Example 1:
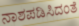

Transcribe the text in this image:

ನಾಶಪಡಿಸಿದಂತೆ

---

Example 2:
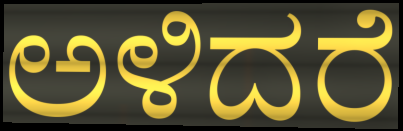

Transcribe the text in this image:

ಅಳಿದರೆ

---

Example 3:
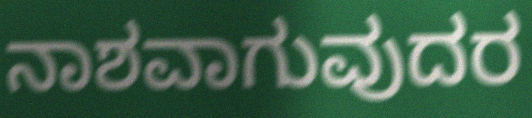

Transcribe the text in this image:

ನಾಶವಾಗುವುದರ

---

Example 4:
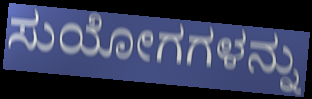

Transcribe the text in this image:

ಸುಯೋಗಗಳನ್ನು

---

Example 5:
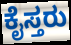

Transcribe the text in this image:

ಕೈಸ್ತರು